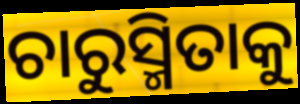
ଚାରୁସ୍ମିତାକୁ